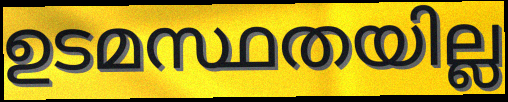
ഉടമസ്ഥതയില്ല